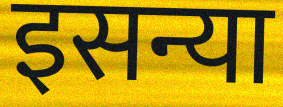
इसन्या